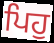
ਪਿਹੁ